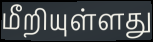
மீறியுள்ளது